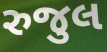
રુજુલ